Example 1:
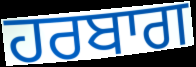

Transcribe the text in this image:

ਹਰਬਾਗ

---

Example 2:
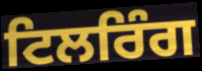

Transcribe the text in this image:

ਟਿਲਰਿੰਗ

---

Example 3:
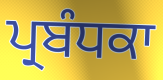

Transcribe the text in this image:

ਪ੍ਰਬੰਧਕਾ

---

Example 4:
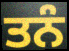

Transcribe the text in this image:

ਤਨੰ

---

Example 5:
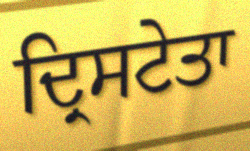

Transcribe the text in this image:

ਦ੍ਰਿਸਟੇਤਾ